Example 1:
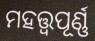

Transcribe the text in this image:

ମହତ୍ତ୍ଵପୂର୍ଣ୍ଣ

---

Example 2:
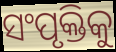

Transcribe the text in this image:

ସଂପୃକ୍ତିକୁ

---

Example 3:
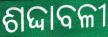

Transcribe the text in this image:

ଶଦ୍ଦାବଳୀ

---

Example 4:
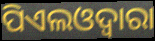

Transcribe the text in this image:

ପିଏଲଓଦ୍ୱାରା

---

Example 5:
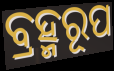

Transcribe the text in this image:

ବ୍ରହ୍ମରୂପ